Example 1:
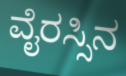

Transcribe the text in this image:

ವೈರಸ್ಸಿನ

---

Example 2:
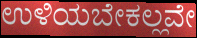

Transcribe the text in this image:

ಉಳಿಯಬೇಕಲ್ಲವೇ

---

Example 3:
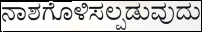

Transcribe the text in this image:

ನಾಶಗೊಳಿಸಲ್ಪಡುವುದು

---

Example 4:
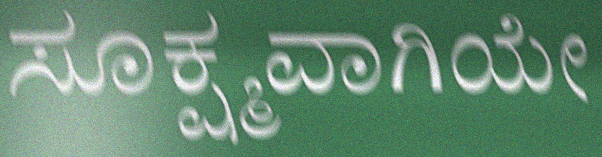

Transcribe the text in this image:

ಸೂಕ್ಷ್ಮವಾಗಿಯೇ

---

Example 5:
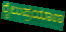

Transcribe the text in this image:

ರೈಲುಪ್ರಯಾಣ